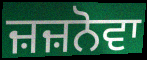
ਜ਼ਜ਼ਨੋਵਾ